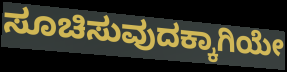
ಸೂಚಿಸುವುದಕ್ಕಾಗಿಯೇ